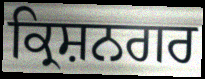
ਕ੍ਰਿਸ਼ਨਗਰ